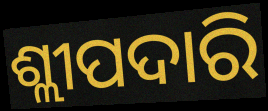
ଶ୍ଲୀପଦାରି